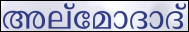
അല്മോദാദ്